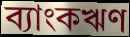
ব্যাংকঋণ